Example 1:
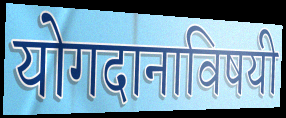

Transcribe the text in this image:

योगदानाविषयी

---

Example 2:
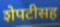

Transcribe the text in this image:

शेपटीसह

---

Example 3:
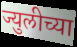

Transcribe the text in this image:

ज्युलीच्या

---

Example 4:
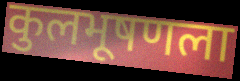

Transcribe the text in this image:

कुलभूषणला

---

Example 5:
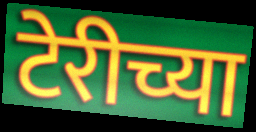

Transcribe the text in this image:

टेरीच्या